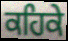
ਕਹਿਕੇ